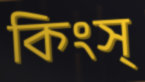
কিংস্